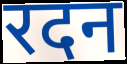
रदन